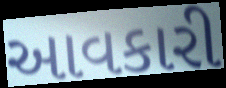
આવકારી